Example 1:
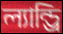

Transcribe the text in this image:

ল্যান্ড্রি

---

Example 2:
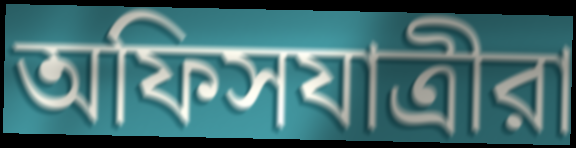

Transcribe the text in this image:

অফিসযাত্রীরা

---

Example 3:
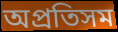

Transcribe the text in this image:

অপ্রতিসম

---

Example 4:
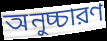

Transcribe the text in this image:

অনুচ্চারণ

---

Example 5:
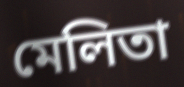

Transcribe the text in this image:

মেলিতা